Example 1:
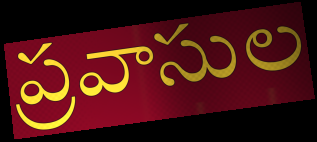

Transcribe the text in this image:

ప్రవాసుల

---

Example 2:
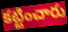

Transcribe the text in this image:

కట్టించారు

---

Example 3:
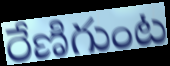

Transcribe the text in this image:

రేణిగుంట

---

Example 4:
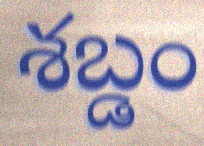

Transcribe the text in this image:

శబ్డం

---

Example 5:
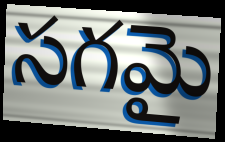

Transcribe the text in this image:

సగమై